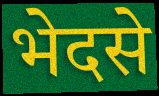
भेदसे